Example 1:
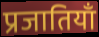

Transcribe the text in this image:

प्रजातियाँ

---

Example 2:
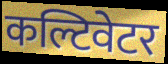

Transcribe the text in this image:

कल्टिवेटर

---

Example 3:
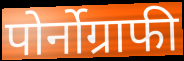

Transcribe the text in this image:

पोर्नोग्राफी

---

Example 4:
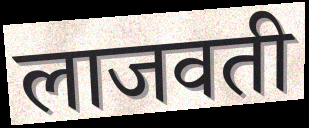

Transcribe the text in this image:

लाजवती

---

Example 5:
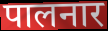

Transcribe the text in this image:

पालनार